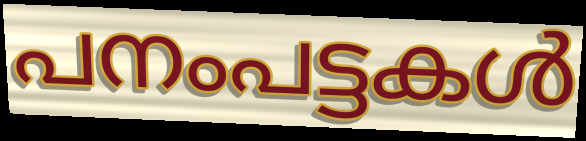
പനംപട്ടകൾ